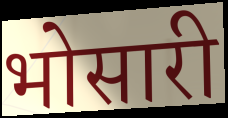
भोसारी